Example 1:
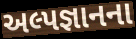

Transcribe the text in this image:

અલ્પજ્ઞાનના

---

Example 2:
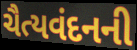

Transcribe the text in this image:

ચૈત્યવંદનની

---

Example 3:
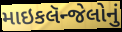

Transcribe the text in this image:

માઇકલૅન્જેલોનું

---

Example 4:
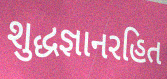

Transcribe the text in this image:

શુદ્ધજ્ઞાનરહિત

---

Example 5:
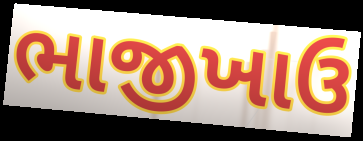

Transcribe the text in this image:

ભાજીખાઉ